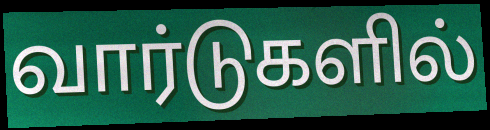
வார்டுகளில்